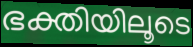
ഭക്തിയിലൂടെ